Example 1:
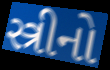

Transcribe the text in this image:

સ્ત્રીનો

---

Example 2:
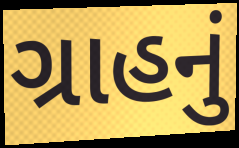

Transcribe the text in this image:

ગ્રાહનું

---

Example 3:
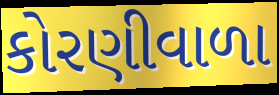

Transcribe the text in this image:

કોરણીવાળા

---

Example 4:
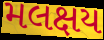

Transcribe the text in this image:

મલક્ષય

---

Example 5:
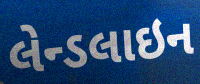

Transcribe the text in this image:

લેન્ડલાઇન